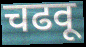
चढवू